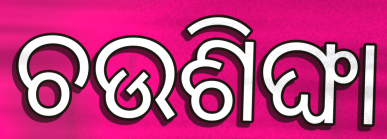
ଚଉଶିଙ୍ଘା